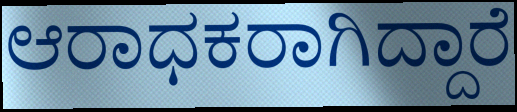
ಆರಾಧಕರಾಗಿದ್ದಾರೆ